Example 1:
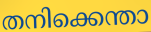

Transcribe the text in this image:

തനിക്കെന്താ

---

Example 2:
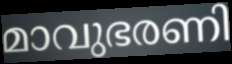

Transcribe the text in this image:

മാവുഭരണി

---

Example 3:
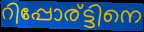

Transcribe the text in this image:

റിപ്പോര്ട്ടിനെ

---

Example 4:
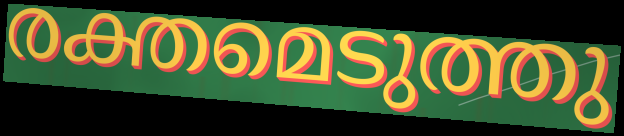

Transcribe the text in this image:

രക്തമെടുത്തു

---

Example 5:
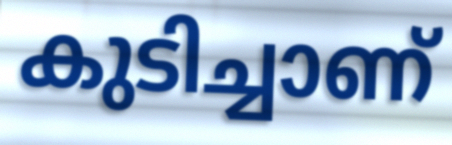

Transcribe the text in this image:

കുടിച്ചാണ്